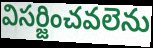
విసర్జించవలెను